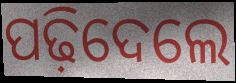
ପଢ଼ିଦେଲେ